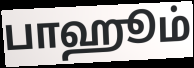
பாஹூம்